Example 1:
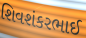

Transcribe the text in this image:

શિવશંકરભાઈ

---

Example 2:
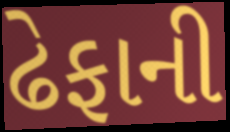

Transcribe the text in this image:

ઢેફાની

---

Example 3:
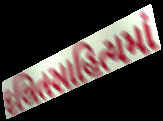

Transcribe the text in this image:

દલિતસાહિત્યમાં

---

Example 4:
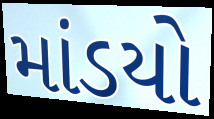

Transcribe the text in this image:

માંડયો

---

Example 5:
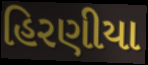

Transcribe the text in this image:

હિરણીયા